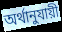
অর্থানুযায়ী